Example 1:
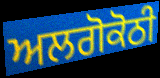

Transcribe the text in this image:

ਅਲਗੋਕੋਠੀ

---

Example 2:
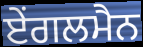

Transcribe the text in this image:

ਏਂਗਲਮੈਨ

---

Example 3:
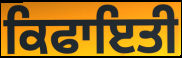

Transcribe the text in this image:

ਕਿਫਾਇਤੀ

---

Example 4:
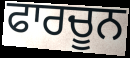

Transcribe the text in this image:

ਫਾਰਚੂਨ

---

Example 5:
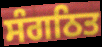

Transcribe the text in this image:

ਸੰਗਠਿਤ